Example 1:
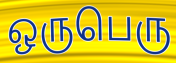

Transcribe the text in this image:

ஒருபெரு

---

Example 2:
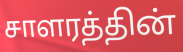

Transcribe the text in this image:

சாளரத்தின்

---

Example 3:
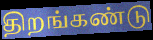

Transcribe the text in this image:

திறங்கண்டு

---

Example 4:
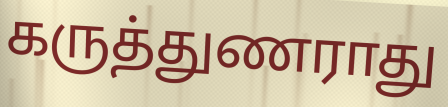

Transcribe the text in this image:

கருத்துணராது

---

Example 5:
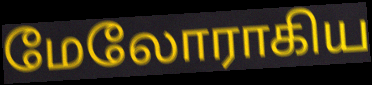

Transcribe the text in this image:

மேலோராகிய